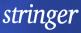
stringer